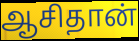
ஆசிதான்